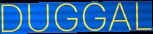
DUGGAL